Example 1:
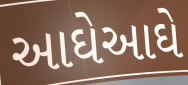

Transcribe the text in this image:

આઘેઆઘે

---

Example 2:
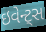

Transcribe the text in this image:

ઇવેન્ટ્સ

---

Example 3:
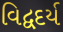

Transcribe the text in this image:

વિદ્વદર્ય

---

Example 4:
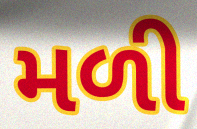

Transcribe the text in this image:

મળી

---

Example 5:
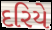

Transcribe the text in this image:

દરિયે